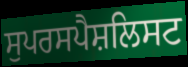
ਸੁਪਰਸਪੈਸ਼ਲਿਸਟ